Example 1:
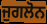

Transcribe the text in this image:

ਜੁਗਲੋਨ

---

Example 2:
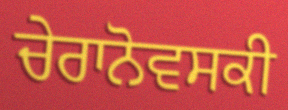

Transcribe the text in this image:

ਚੇਰਾਨੋਵਸਕੀ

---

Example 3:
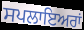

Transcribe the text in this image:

ਸਪਲਾਇਅਰਾਂ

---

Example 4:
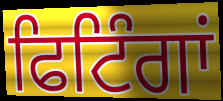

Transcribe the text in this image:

ਫਿਟਿੰਗਾਂ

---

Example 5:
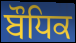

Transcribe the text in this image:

ਬੌਧਿਕ